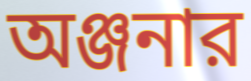
অঞ্জনার